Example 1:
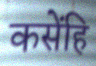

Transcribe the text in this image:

कसेंहि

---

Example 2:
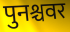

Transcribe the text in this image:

पुनश्चवर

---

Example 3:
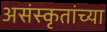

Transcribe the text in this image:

असंस्कृतांच्या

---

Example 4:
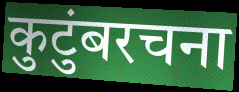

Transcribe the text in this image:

कुटुंबरचना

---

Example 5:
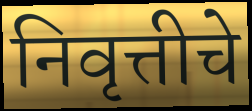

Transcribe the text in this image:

निवृत्तीचे